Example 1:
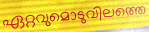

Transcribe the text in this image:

ഏറ്റവുമൊടുവിലത്തെ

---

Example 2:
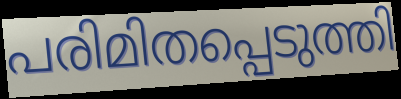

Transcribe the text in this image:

പരിമിതപ്പെടുത്തി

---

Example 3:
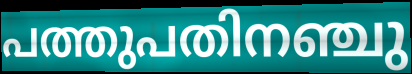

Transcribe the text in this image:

പത്തുപതിനഞ്ചു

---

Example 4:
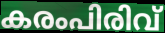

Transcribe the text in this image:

കരംപിരിവ്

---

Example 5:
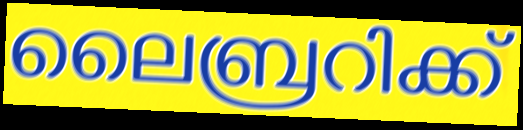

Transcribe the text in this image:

ലൈബ്രറിക്ക്